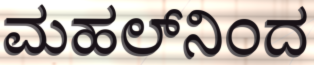
ಮಹಲ್‌ನಿಂದ